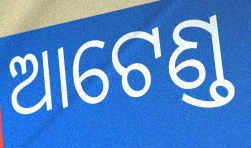
ଆଟେଣ୍ଡ